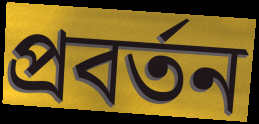
প্রবর্তন